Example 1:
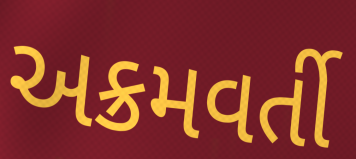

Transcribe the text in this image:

અક્રમવર્તી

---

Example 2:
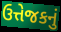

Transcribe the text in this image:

ઉત્તેજકનું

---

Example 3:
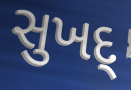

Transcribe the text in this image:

સુખદ્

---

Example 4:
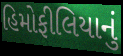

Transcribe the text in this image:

હિમોફીલિયાનું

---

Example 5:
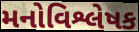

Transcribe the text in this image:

મનોવિશ્લેષક